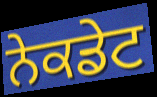
ਨੇਕਡੇਟ